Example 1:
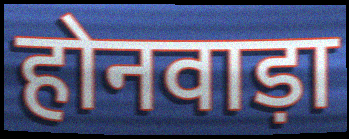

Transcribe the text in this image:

होनवाड़ा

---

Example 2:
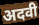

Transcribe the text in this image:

अदवी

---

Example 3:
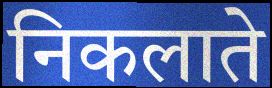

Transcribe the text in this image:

निकलाते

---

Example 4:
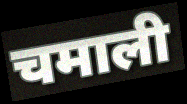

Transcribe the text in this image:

चमाली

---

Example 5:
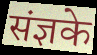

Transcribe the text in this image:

संज्ञके